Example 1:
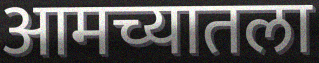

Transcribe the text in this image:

आमच्यातला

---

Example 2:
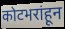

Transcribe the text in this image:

कोटभरांहून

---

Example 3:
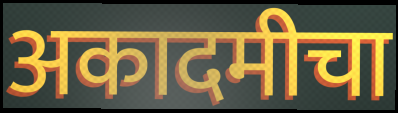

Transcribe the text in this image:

अकादमीचा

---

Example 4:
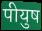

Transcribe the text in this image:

पीयुष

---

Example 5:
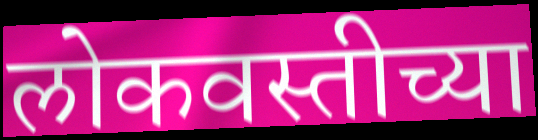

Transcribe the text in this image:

लोकवस्तीच्या